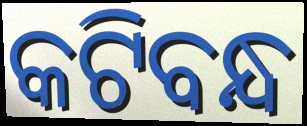
କଟିବନ୍ଧ